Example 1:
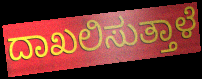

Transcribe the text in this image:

ದಾಖಲಿಸುತ್ತಾಳೆ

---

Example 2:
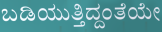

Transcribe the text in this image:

ಬಡಿಯುತ್ತಿದ್ದಂತೆಯೇ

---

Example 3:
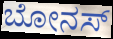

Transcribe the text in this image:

ಬೋನಸ್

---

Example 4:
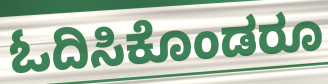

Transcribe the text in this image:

ಓದಿಸಿಕೊಂಡರೂ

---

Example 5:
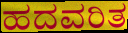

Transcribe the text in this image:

ಹದವರಿತ